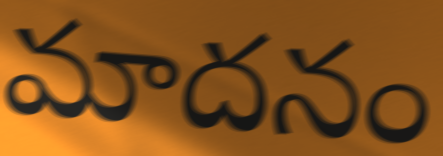
మాదనం